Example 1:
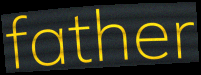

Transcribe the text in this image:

father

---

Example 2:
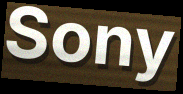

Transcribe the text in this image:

Sony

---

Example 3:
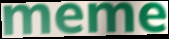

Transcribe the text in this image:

meme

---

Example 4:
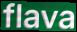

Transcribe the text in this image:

flava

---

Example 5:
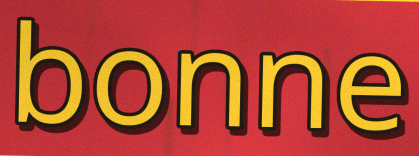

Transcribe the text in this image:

bonne